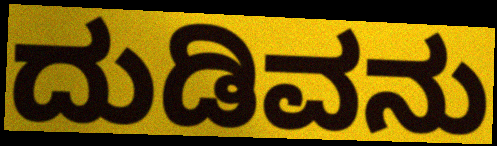
ದುಡಿವನು